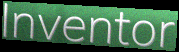
Inventor